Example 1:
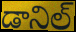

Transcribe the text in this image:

డానిల్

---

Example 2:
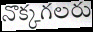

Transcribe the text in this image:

నొక్కగలరు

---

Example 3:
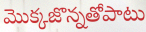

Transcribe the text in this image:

మొక్కజొన్నతోపాటు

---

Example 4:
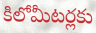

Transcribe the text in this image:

కిలోమీటర్లకు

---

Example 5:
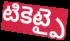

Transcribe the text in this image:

టికెట్పై